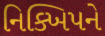
નિક્ખિપને